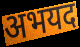
अभयद